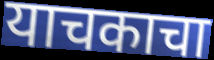
याचकाचा